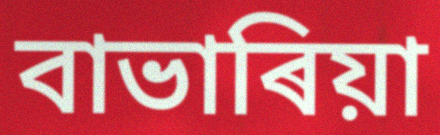
বাভাৰিয়া